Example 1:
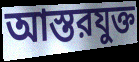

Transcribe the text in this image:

আস্তরযুক্ত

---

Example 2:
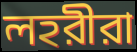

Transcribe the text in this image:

লহরীরা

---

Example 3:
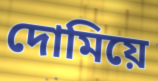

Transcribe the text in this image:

দোমিয়ে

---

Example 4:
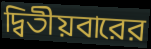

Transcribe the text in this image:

দ্বিতীয়বারের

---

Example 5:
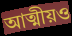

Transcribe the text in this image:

আত্মীয়ও